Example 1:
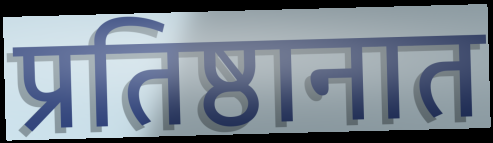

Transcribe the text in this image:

प्रतिष्ठानात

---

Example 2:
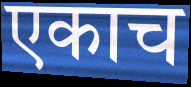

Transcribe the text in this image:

एकाच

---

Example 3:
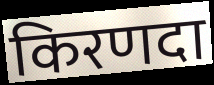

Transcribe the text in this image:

किरणदा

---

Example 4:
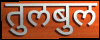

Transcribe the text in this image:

तुलबुल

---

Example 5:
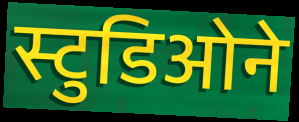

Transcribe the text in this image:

स्टुडिओने